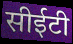
सीईटी